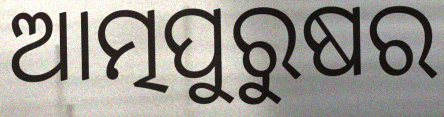
ଆତ୍ମପୁରୁଷର